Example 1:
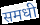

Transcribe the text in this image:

समधी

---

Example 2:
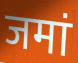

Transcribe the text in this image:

जमां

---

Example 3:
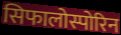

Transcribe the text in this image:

सिफालोस्पोरिन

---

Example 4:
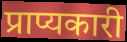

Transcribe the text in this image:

प्राप्यकारी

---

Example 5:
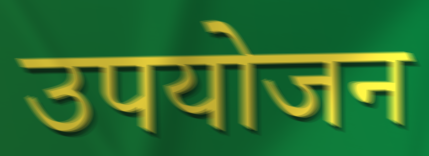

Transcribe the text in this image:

उपयोजन